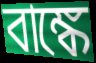
বাঙ্কে